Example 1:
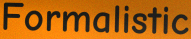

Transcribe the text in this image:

Formalistic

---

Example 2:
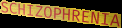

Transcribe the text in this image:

SCHIZOPHRENIA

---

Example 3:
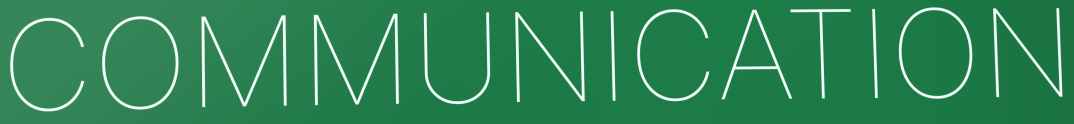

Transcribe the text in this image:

COMMUNICATION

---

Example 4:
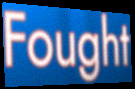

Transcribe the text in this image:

Fought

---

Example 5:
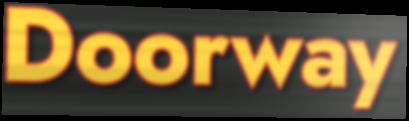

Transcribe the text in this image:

Doorway